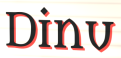
Dinu